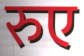
रुए